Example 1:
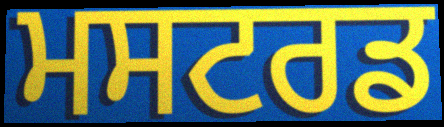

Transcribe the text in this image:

ਮਸਟਰਡ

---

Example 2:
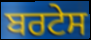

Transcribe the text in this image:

ਬਰਟੇਸ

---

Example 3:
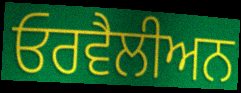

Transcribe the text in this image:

ਓਰਵੈਲੀਅਨ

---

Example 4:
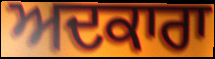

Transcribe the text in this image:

ਅਦਕਾਰਾ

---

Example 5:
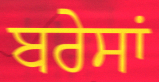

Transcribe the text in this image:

ਬਰੇਸਾਂ